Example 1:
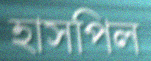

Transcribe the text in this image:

হাসপিল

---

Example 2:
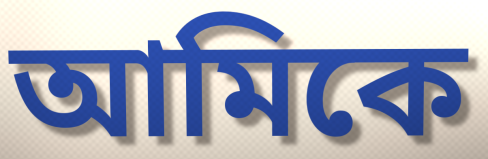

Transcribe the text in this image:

আমিকে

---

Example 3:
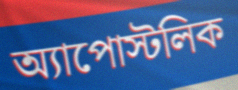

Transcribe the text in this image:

অ্যাপোস্টলিক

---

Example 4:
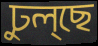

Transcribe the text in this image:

ঢুল্‌ছে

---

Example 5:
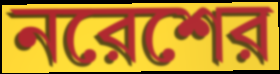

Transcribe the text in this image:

নরেশের